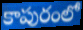
కాపురంలో